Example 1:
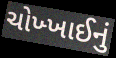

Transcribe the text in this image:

ચોખ્ખાઈનું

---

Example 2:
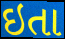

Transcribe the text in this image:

ઇતા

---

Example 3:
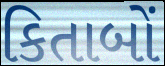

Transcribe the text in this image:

કિતાબોં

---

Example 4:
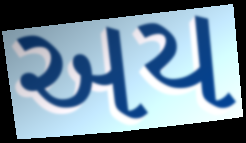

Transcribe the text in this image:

અય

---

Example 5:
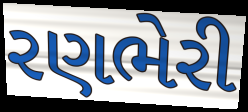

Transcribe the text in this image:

રણભેરી